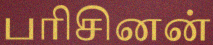
பரிசினன்